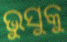
ଭୁସୁକୁ